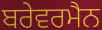
ਬਰੇਵਰਮੈਨ